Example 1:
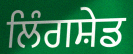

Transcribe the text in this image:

ਲਿੰਗਸ਼ੇਡ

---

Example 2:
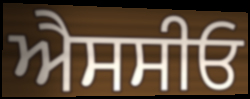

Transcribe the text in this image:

ਐਸਸੀਓ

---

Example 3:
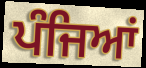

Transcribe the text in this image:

ਪੰਜਿਆਂ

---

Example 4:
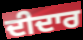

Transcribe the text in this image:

ਦੀਦਾਰ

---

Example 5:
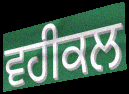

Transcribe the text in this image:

ਵਹੀਕਲ